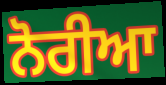
ਨੋਰੀਆ